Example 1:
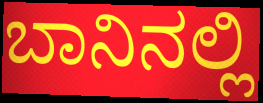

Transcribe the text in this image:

ಬಾನಿನಲ್ಲಿ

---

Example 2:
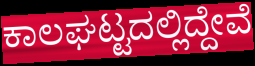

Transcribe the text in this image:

ಕಾಲಘಟ್ಟದಲ್ಲಿದ್ದೇವೆ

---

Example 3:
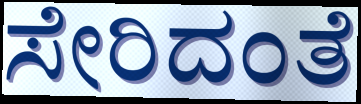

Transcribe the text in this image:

ಸೇರಿದಂತೆ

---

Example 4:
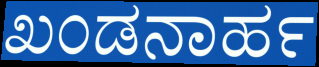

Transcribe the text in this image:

ಖಂಡನಾರ್ಹ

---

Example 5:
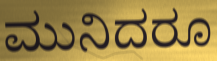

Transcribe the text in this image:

ಮುನಿದರೂ